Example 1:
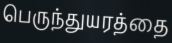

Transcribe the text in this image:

பெருந்துயரத்தை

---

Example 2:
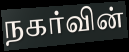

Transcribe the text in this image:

நகர்வின்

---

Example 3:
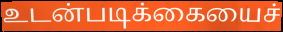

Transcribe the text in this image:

உடன்படிக்கையைச்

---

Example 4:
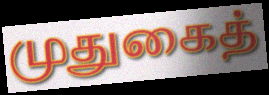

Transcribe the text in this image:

முதுகைத்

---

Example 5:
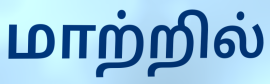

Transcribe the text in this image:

மாற்றில்